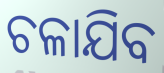
ଚଳାଯିବ